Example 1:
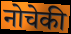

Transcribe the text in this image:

नोचेकी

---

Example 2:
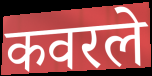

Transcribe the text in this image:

कवरले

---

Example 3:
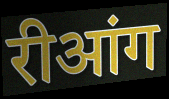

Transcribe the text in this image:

रीआंग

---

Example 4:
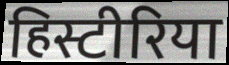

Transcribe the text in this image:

हिस्टीरिया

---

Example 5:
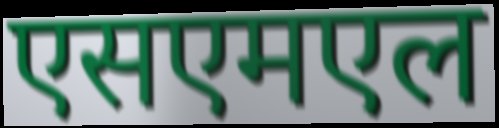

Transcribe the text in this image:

एसएमएल